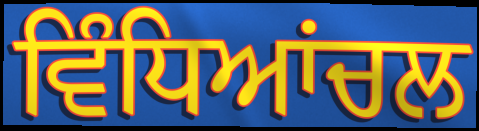
ਵਿੰਧਿਆਂਚਲ